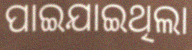
ପାଇଯାଇଥିଲା